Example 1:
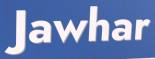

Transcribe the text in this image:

Jawhar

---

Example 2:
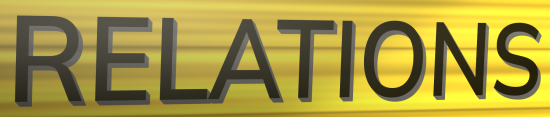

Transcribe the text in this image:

RELATIONS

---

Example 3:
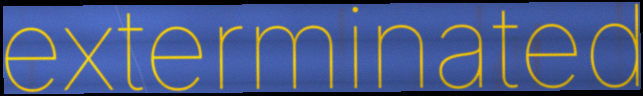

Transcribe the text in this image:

exterminated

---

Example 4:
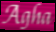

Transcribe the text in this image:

Agha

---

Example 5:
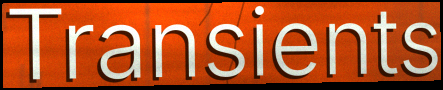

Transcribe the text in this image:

Transients